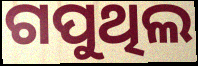
ଗପୁଥିଲ